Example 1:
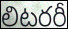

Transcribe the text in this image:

లిటరరీ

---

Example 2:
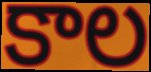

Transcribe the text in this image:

కాల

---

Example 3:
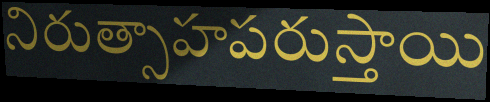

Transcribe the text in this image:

నిరుత్సాహపరుస్తాయి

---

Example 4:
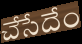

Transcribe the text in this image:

చేసేదేం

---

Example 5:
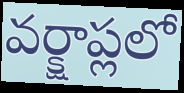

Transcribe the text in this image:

వర్క్షాప్లలో